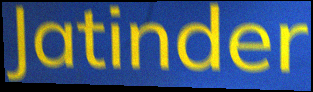
Jatinder